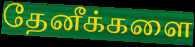
தேனீக்களை